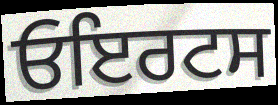
ਓਇਰਟਸ